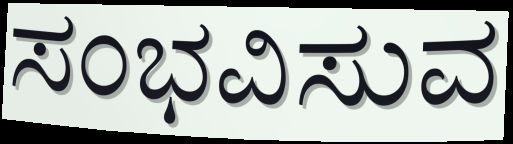
ಸಂಭವಿಸುವ